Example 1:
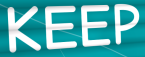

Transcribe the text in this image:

KEEP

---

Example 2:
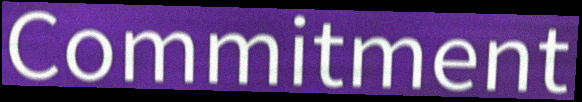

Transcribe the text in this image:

Commitment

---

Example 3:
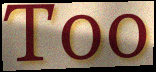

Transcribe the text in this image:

Too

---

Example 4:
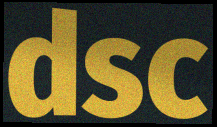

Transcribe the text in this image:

dsc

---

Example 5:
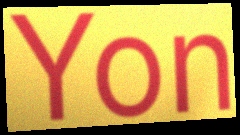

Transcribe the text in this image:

Yon